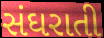
સંઘરાતી